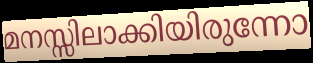
മനസ്സിലാക്കിയിരുന്നോ